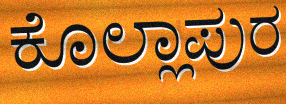
ಕೊಲ್ಲಾಪುರ